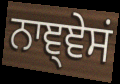
ਨਾਞ੍ਞੇਸਂ